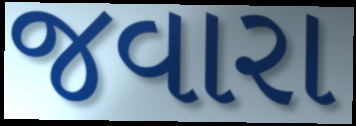
જવારા